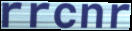
rrcnr